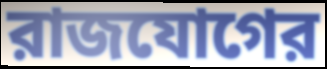
রাজযোগের